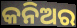
କନିଅର